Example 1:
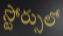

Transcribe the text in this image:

స్టోర్సులో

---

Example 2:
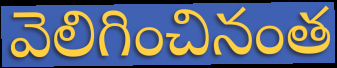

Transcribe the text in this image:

వెలిగించినంత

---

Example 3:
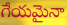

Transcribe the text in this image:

గేయమైనా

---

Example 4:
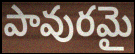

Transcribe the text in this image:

పావురమై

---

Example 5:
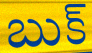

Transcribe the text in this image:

బుక్